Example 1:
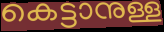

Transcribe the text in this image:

കെട്ടാനുള്ള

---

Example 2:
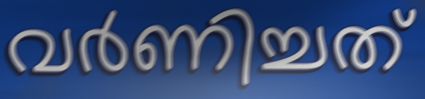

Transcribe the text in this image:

വർണിച്ചത്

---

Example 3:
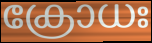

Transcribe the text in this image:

ക്രോധഃ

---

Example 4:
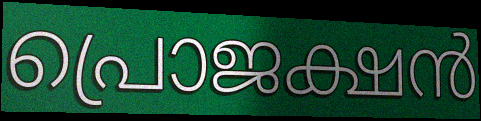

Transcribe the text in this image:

പ്രൊജക്ഷൻ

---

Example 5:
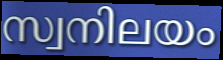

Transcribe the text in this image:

സ്വനിലയം